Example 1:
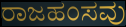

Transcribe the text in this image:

ರಾಜಹಂಸವು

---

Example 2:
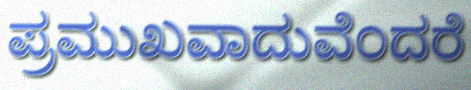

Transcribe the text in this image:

ಪ್ರಮುಖವಾದುವೆಂದರೆ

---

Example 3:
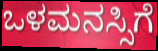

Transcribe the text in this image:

ಒಳಮನಸ್ಸಿಗೆ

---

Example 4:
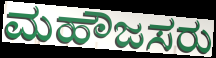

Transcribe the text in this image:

ಮಹೌಜಸರು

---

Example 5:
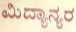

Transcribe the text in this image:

ಮಿದ್ಯಾನ್ಯರ